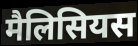
मैलिसियस